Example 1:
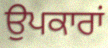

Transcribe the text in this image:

ਉਪਕਾਰਾਂ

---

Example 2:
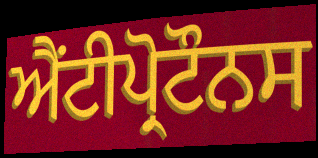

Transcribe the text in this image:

ਐਂਟੀਪ੍ਰੋਟੌਨਸ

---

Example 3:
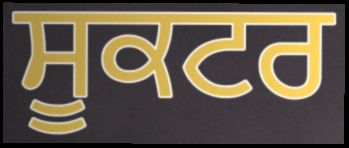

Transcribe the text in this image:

ਸੂਕਟਰ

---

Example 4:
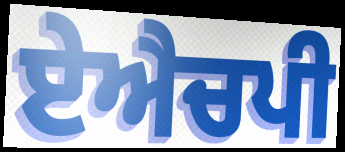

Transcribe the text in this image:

ਏਐਚਪੀ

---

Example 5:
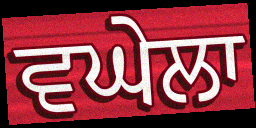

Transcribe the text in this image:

ਵਘੇਲਾ